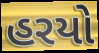
હરયો